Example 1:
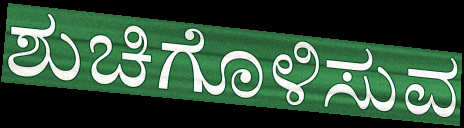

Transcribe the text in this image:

ಶುಚಿಗೊಳಿಸುವ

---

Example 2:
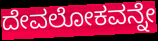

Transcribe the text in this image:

ದೇವಲೋಕವನ್ನೇ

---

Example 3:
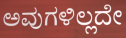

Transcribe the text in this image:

ಅವುಗಳಿಲ್ಲದೇ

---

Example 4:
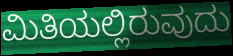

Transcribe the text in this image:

ಮಿತಿಯಲ್ಲಿರುವುದು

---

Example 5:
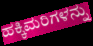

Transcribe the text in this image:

ಹಕ್ಕಿಮರಿಗಳನ್ನು